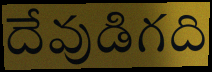
దేవుడిగది